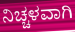
ನಿಚ್ಚಳವಾಗಿ